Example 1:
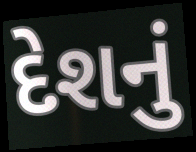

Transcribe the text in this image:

દેશનું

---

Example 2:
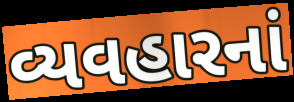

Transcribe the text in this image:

વ્યવહારનાં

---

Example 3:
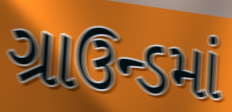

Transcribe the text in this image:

ગ્રાઉન્ડમાં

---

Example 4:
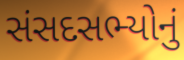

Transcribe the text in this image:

સંસદસભ્યોનું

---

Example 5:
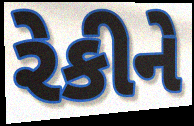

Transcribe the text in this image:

રેકીને